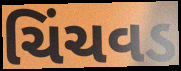
ચિંચવડ